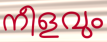
നീളവും